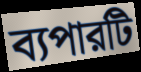
ব্যপারটি